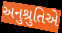
અનુશ્રુતિએ